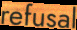
refusal